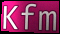
Kfm